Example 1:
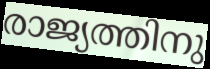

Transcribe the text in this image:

രാജ്യത്തിനു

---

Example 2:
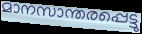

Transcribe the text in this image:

മാനസാന്തരപ്പെട്ടു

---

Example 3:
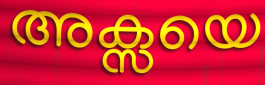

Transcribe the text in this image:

അക്സയെ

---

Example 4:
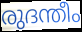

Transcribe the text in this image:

രുദന്തീം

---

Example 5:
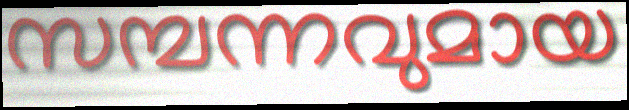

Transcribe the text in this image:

സമ്പന്നവുമായ